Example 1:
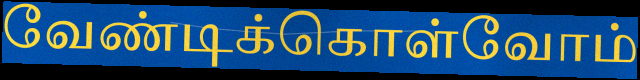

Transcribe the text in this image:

வேண்டிக்கொள்வோம்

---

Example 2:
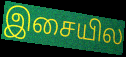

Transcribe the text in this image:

இசையில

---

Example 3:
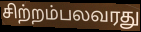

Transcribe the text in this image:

சிற்றம்பலவரது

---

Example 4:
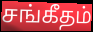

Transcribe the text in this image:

சங்கீதம்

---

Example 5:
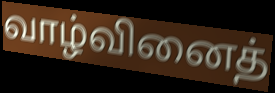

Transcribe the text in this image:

வாழ்வினைத்